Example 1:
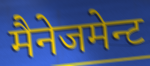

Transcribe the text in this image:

मैनेजमेन्ट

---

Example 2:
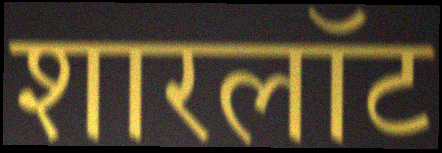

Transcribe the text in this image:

शारलॉट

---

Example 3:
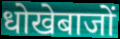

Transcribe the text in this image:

धोखेबाजों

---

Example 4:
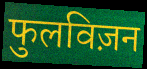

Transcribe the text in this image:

फुलविज़न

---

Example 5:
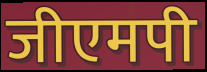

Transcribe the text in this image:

जीएमपी